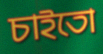
চাইতো